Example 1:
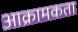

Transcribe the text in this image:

आक्रामकता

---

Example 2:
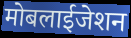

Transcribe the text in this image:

मोबलाईजेशन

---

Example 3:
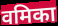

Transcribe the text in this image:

वमिका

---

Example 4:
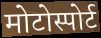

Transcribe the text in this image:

मोटोस्पोर्ट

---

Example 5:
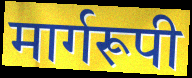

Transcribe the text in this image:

मार्गरूपी